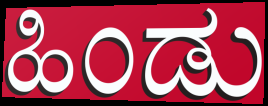
ಹಿಂಡು